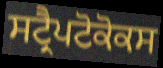
ਸਟ੍ਰੈਪਟੋਕੋਕਸ